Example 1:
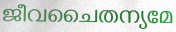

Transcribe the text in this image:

ജീവചൈതന്യമേ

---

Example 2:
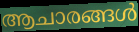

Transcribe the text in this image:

ആചാരങ്ങൾ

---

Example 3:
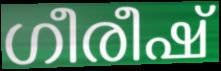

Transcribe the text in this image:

ഗീരീഷ്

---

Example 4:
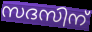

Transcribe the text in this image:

സദസിന്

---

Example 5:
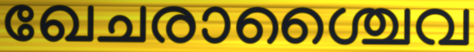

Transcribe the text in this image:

ഖേചരാശ്ചൈവ